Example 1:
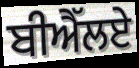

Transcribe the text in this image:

ਬੀਐੱਲਏ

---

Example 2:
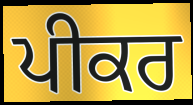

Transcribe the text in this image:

ਪੀਕਰ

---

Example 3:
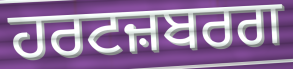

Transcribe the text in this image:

ਹਰਟਜ਼ਬਰਗ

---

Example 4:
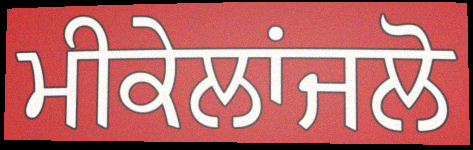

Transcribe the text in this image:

ਮੀਕੇਲਾਂਜਲੋ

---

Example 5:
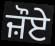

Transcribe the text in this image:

ਜ਼ੌਏ